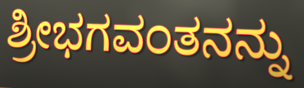
ಶ್ರೀಭಗವಂತನನ್ನು